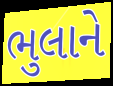
ભુલાને